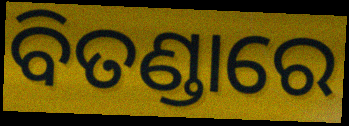
ବିତଣ୍ଡାରେ